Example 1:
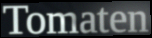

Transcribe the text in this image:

Tomaten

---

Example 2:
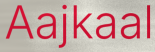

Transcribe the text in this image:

Aajkaal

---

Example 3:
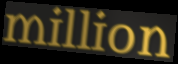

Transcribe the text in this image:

million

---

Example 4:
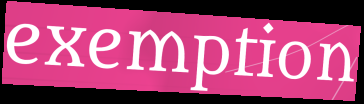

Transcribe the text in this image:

exemption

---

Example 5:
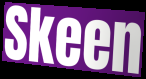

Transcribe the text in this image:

Skeen